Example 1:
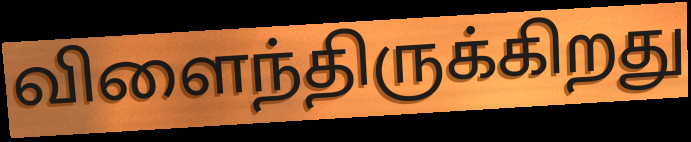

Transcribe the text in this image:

விளைந்திருக்கிறது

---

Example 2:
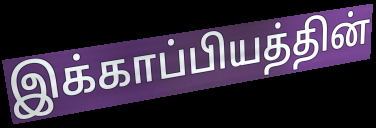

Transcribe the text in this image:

இக்காப்பியத்தின்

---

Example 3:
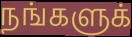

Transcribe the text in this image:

நங்களுக்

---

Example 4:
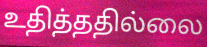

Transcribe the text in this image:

உதித்ததில்லை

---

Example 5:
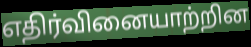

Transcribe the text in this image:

எதிர்வினையாற்றின